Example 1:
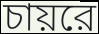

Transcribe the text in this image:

চায়রে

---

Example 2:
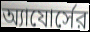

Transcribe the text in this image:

অ্যাযোর্সের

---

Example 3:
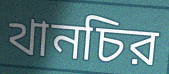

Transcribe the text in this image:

থানচির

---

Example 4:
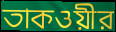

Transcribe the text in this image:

তাকওয়ীর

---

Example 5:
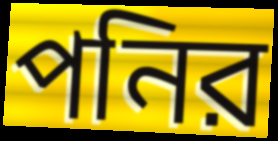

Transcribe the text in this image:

পনির